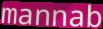
mannab